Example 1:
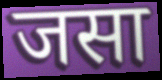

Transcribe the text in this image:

जसा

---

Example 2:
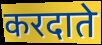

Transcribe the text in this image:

करदाते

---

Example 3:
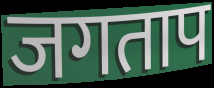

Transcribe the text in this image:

जगताप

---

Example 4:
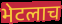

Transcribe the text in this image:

भेटलाच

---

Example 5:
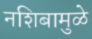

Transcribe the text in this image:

नशिबामुळे